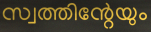
സ്വത്തിന്റേയും